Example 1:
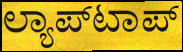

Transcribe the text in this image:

ಲ್ಯಾಪ್‍ಟಾಪ್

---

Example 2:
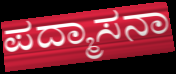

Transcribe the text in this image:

ಪದ್ಮಾಸನಾ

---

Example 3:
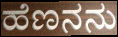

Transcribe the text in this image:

ಹೆಣನನು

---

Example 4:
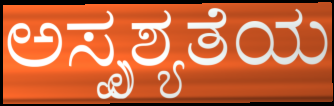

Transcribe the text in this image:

ಅಸ್ಪೃಶ್ಯತೆಯ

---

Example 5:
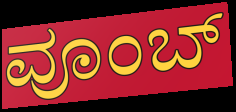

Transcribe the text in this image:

ವೂಂಬ್